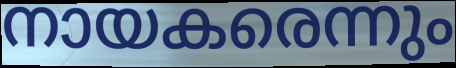
നായകരെന്നും